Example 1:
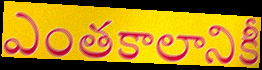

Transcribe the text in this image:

ఎంతకాలానికీ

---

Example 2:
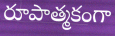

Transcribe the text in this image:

రూపాత్మకంగా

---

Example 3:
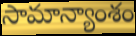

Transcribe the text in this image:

సామాన్యాంశం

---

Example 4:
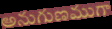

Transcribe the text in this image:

అనుగుణముగా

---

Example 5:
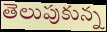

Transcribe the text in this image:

తెలుపుకున్న